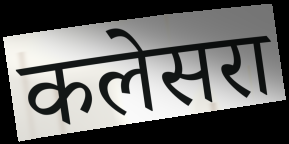
कलेसरा